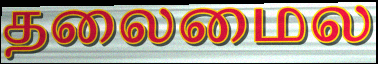
தலைமைல